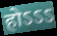
होऽऽऽ